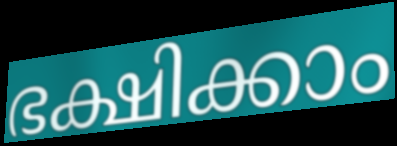
ഭക്ഷിക്കാം